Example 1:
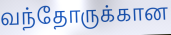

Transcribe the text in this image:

வந்தோருக்கான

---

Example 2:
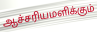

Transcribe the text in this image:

ஆச்சரியமளிக்கும்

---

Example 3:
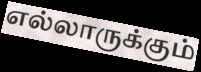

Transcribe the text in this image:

எல்லாருக்கும்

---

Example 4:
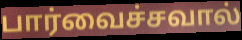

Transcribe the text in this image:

பார்வைச்சவால்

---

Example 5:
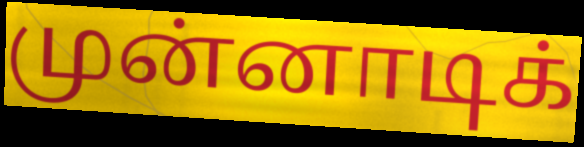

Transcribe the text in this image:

முன்னாடிக்